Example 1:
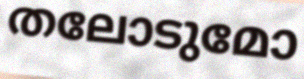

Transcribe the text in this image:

തലോടുമോ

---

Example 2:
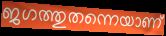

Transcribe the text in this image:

ജഗത്തുതന്നെയാണ്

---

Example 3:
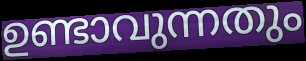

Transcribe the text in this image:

ഉണ്ടാവുന്നതും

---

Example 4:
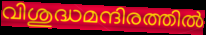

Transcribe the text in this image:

വിശുദ്ധമന്ദിരത്തിൽ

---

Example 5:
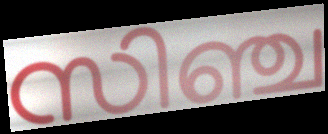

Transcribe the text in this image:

സിഞ്ച